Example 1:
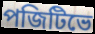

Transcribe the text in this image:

পজিটিভে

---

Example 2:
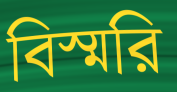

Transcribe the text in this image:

বিস্মরি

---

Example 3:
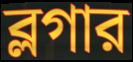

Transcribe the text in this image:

ব্লগার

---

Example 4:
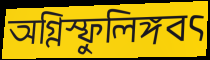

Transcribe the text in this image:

অগ্নিস্ফুলিঙ্গবৎ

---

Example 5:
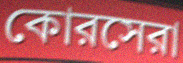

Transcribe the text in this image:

কোরসেরা